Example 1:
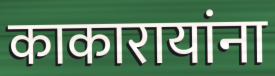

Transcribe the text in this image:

काकारायांना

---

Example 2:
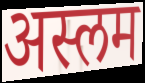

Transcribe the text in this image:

अस्लम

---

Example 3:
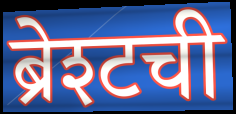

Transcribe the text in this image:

ब्रेश्टची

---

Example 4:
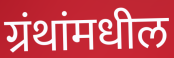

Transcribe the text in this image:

ग्रंथांमधील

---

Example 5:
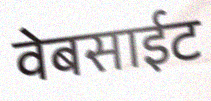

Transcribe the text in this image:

वेबसाईट